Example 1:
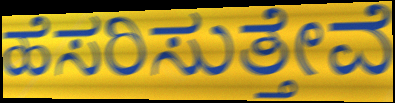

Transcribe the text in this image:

ಹೆಸರಿಸುತ್ತೇವೆ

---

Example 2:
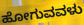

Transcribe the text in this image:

ಹೋಗುವವಳು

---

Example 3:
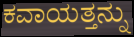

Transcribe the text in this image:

ಕವಾಯತ್ತನ್ನು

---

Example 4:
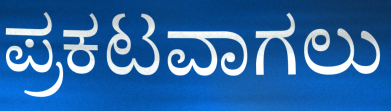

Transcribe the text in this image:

ಪ್ರಕಟವಾಗಲು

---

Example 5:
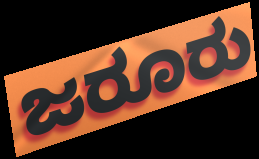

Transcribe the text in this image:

ಜರೂರು